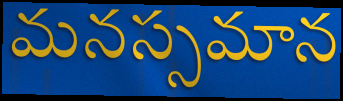
మనస్సమాన